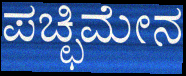
ಪಚ್ಛಿಮೇನ